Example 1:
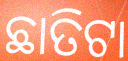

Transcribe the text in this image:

ଛାତିଟା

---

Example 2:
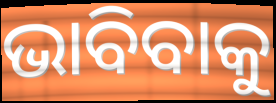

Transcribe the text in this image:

ଭାବିବାକୁ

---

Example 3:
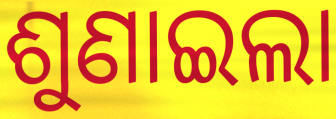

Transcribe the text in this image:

ଶୁଣାଇଲା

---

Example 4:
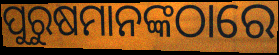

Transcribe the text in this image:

ପୁରୁଷମାନଙ୍କଠାରେ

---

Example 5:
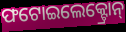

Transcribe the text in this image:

ଫଟୋଇଲେକ୍ଟ୍ରୋନ୍